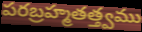
పరబ్రహ్మతత్త్వము